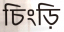
চিংড়ি